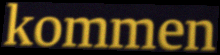
kommen